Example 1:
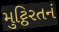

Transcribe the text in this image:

મુટ્ઠિરતનં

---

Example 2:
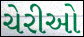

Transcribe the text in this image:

ચેરીઓ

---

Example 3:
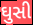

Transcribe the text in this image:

ઘુસી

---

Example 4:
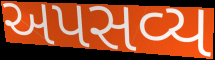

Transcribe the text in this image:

અપસવ્ય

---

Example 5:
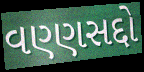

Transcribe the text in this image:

વણ્ણસદ્દો